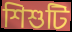
শিশুটি